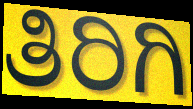
ತಿರಿಗಿ